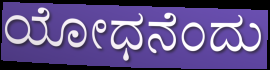
ಯೋಧನೆಂದು